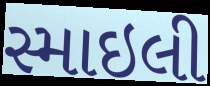
સ્માઇલી